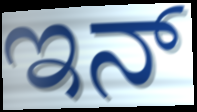
ಇನ್